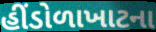
હીંડોળાખાટના